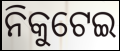
ନିକୁଟେଇ